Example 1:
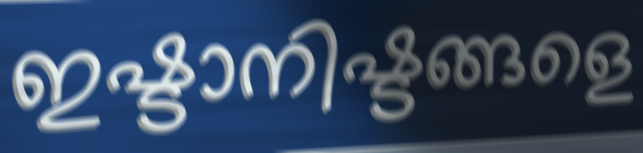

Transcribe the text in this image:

ഇഷ്ടാനിഷ്ടങ്ങളെ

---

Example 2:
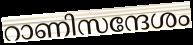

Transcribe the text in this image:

റാണിസന്ദേശം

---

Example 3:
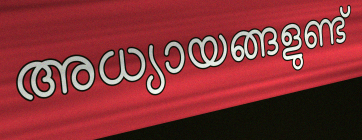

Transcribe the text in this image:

അധ്യായങ്ങളുണ്ട്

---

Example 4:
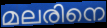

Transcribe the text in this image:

മലരിനെ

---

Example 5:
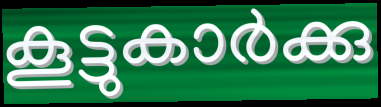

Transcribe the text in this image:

കൂട്ടുകാർക്കു